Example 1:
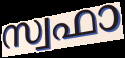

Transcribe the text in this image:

സ്വഫാ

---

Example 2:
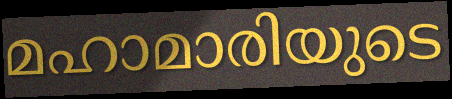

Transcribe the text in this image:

മഹാമാരിയുടെ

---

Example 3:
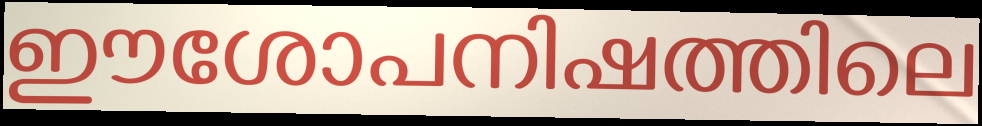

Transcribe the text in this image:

ഈശോപനിഷത്തിലെ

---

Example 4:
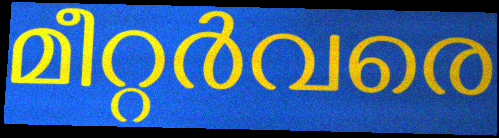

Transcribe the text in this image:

മീറ്റർവരെ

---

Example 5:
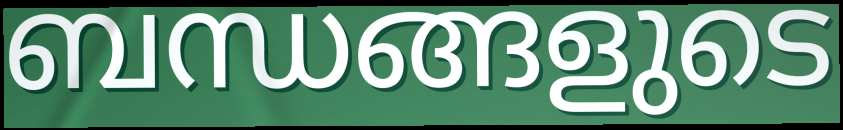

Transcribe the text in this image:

ബന്ധങ്ങളുടെ